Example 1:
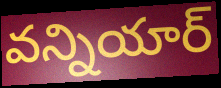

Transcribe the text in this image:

వన్నియార్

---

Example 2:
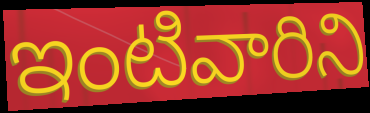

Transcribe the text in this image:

ఇంటివారిని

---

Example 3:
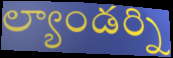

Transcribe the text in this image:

ల్యాండర్ని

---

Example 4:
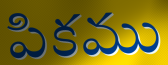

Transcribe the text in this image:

పికము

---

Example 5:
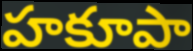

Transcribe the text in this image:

హకూపా